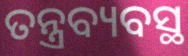
ତନ୍ତ୍ରବ୍ୟବସ୍ଥ